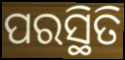
ପରସ୍ଥିତି